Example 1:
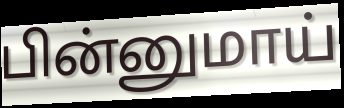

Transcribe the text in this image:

பின்னுமாய்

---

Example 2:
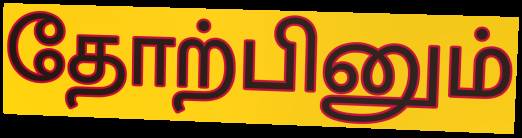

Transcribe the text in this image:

தோற்பினும்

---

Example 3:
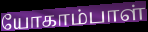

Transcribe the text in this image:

யோகாம்பாள்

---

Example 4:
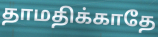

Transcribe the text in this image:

தாமதிக்காதே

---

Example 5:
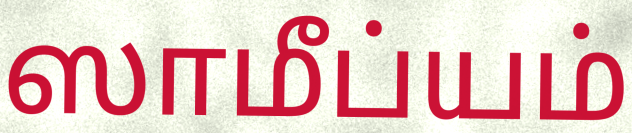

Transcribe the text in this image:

ஸாமீப்யம்